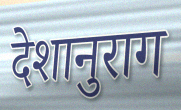
देशानुराग